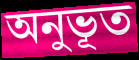
অনুভূত